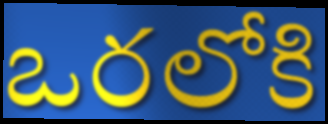
ఒరలోకి